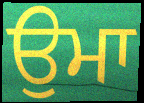
ਉਮਾ